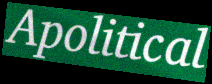
Apolitical